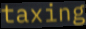
taxing